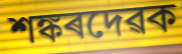
শঙ্কৰদেৱক